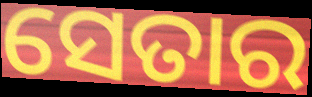
ସେତାର